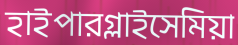
হাইপারগ্লাইসেমিয়া